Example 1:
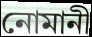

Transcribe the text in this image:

নোমানী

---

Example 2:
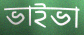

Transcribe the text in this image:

ভাইভা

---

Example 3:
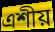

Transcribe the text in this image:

এশীয়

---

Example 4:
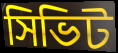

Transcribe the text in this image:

সিভিট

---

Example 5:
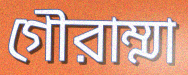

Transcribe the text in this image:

গৌরাম্মা